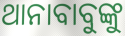
ଥାନାବାବୁଙ୍କୁ